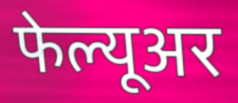
फेल्यूअर